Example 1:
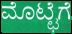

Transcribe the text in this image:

ಮೊಟ್ಟೆಗೆ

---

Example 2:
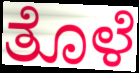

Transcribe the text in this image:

ತೊಳೆ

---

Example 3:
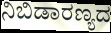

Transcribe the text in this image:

ನಿಬಿಡಾರಣ್ಯದ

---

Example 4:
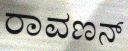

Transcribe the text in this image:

ರಾವಣನ್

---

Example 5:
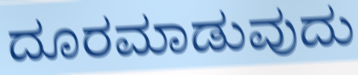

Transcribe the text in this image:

ದೂರಮಾಡುವುದು